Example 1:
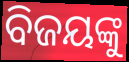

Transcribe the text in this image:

ବିଜୟଙ୍କୁ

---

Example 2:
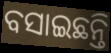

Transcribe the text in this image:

ବସାଇଛନ୍ତି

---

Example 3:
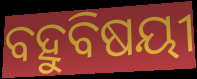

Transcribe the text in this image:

ବହୁବିଷୟୀ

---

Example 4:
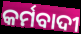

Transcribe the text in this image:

କର୍ମବାଦୀ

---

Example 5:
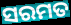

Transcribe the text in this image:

ସରମତ